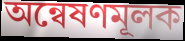
অন্বেষণমূলক